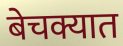
बेचक्यात